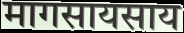
मागसायसाय